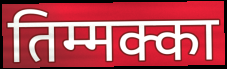
तिम्मक्का